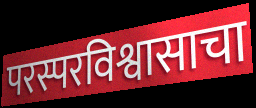
परस्परविश्वासाचा